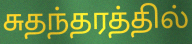
சுதந்தரத்தில்